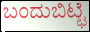
ಬಂದುಬಿಟ್ಟೆ